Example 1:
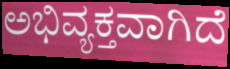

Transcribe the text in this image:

ಅಭಿವ್ಯಕ್ತವಾಗಿದೆ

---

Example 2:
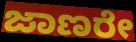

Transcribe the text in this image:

ಜಾಣರೇ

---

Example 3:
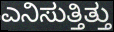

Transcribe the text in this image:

ಎನಿಸುತ್ತಿತ್ತು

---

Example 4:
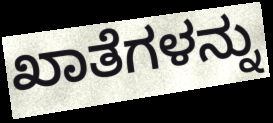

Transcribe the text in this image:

ಖಾತೆಗಳನ್ನು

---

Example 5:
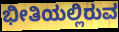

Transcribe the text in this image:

ಭೀತಿಯಲ್ಲಿರುವ